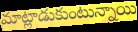
మాట్లాడుకుంటున్నాయి